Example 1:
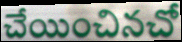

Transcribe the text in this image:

చేయించినచో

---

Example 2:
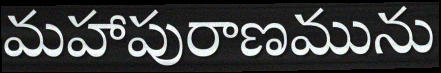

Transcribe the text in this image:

మహాపురాణమును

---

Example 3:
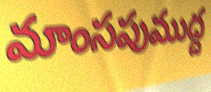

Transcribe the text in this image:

మాంసపుముద్ద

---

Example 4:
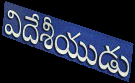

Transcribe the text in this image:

విదేశీయుడు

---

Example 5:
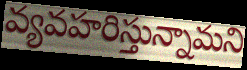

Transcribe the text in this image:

వ్యవహరిస్తున్నామని